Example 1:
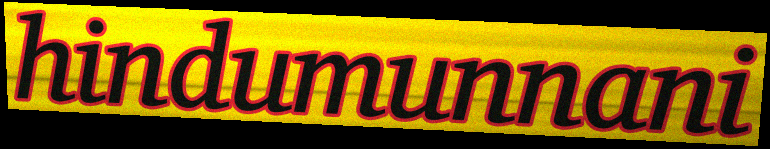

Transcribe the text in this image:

hindumunnani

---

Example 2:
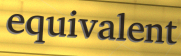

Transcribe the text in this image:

equivalent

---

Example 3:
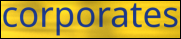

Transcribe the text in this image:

corporates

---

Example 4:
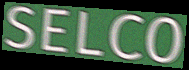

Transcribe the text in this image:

SELCO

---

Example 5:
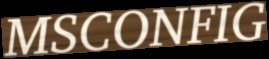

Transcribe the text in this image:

MSCONFIG